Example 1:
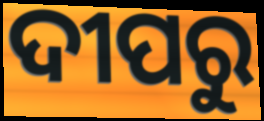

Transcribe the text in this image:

ଦୀପରୁ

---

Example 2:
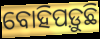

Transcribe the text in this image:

ବୋହିପଡ଼ୁଛି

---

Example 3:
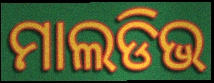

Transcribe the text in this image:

ମାଲଡିଭ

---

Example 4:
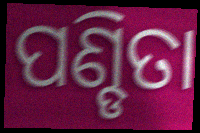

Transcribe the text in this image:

ପଣ୍ଡିତା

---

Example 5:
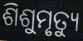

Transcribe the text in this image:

ଶିଶୁମୃତ୍ୟୁ